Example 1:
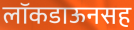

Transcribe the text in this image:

लॉकडाऊनसह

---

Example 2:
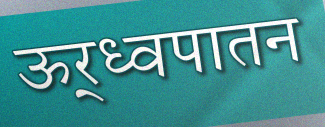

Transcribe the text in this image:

ऊर्ध्वपातन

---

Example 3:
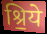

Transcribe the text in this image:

श्रि॒ये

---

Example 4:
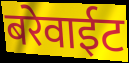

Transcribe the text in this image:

बरेवाईट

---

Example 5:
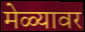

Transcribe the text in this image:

मेळ्यावर